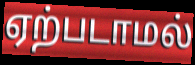
ஏற்படாமல்